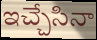
ఇచ్చేసినా